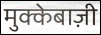
मुक्केबाज़ी